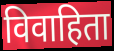
विवाहिता